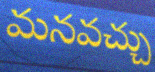
మనవచ్చు